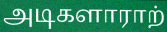
அடிகளாராற்